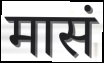
मासं